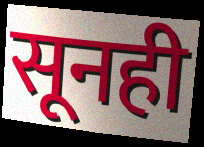
सूनही